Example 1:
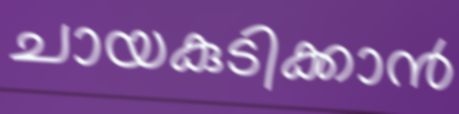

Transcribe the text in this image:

ചായകുടിക്കാൻ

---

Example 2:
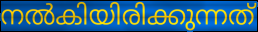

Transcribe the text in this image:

നൽകിയിരിക്കുന്നത്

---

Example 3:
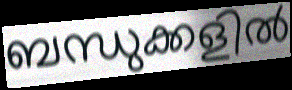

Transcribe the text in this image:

ബന്ധുക്കളിൽ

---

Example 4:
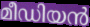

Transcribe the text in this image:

മീഡിയൻ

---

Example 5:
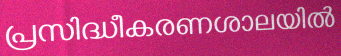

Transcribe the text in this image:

പ്രസിദ്ധീകരണശാലയിൽ